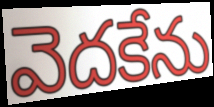
వెదకేను